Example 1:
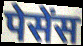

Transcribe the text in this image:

पेसेंस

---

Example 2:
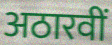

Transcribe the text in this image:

अठारवीं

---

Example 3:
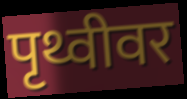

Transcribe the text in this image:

पृथ्वीवर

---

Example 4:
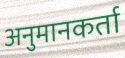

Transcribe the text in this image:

अनुमानकर्ता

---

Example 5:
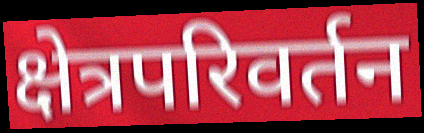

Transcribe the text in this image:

क्षेत्रपरिवर्तन